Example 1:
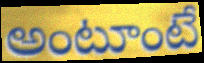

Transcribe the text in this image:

అంటూంటే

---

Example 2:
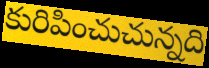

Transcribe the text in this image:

కురిపించుచున్నది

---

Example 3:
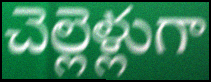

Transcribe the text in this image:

చెల్లెళ్లుగా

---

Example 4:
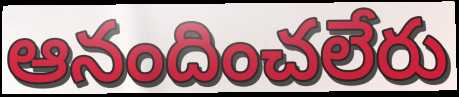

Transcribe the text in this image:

ఆనందించలేరు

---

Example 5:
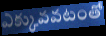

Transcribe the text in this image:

ఎక్కువవటంతో